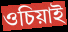
ওচিয়াই